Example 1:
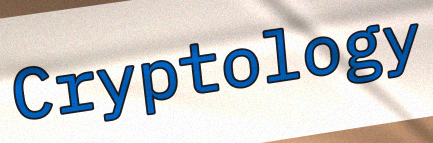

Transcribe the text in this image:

Cryptology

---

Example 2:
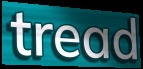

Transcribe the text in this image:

tread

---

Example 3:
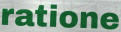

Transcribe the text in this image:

ratione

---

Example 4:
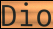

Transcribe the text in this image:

Dio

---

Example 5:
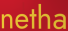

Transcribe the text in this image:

netha